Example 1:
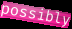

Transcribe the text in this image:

possibly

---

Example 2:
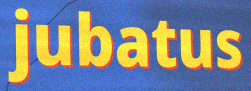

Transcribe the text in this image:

jubatus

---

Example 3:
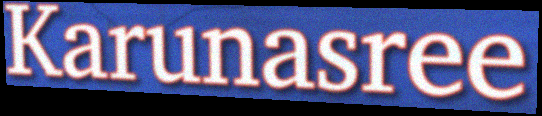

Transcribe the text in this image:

Karunasree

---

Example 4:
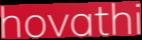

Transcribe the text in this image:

hovathi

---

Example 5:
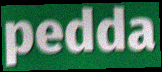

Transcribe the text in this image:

pedda